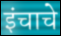
इंचाचे